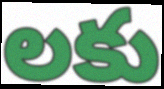
లకు